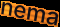
nema